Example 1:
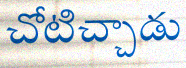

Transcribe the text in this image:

చోటిచ్చాడు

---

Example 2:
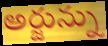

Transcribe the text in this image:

అర్జున్ను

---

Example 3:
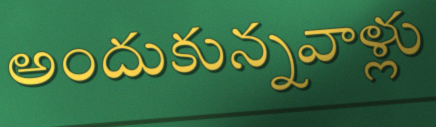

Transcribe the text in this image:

అందుకున్నవాళ్లు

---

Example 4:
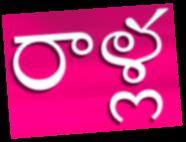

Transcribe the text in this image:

రాళ్ల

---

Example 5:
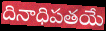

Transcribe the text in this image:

దినాధిపతయే